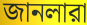
জানলারা